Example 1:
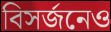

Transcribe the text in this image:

বিসর্জনেও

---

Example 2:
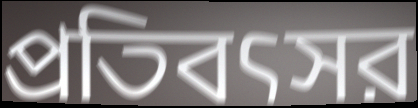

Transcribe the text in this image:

প্রতিবৎসর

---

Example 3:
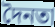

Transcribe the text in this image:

দৈনতা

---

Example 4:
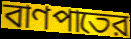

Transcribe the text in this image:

বাণপাতের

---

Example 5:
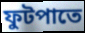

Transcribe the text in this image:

ফুটপাতে